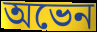
অভেন